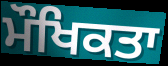
ਮੌਖਿਕਤਾ